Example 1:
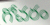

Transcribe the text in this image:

గోచరం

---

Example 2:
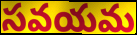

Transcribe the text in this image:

సవయమ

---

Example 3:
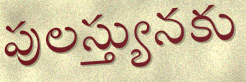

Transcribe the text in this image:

పులస్త్యునకు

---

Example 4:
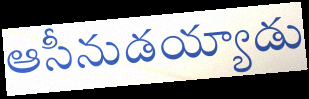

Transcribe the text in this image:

ఆసీనుడయ్యాడు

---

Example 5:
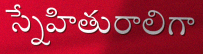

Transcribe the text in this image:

స్నేహితురాలిగా